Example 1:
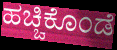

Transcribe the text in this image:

ಹಚ್ಚಿಕೊಂಡೆ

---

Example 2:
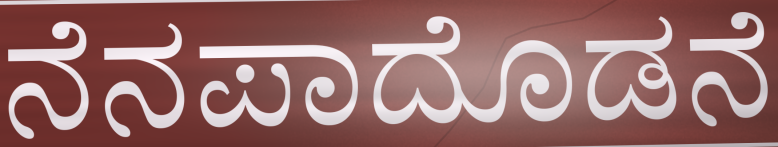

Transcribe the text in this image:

ನೆನಪಾದೊಡನೆ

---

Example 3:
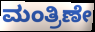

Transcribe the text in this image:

ಮಂತ್ರಿಣೇ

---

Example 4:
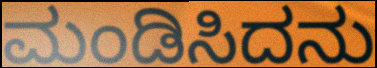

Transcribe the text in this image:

ಮಂಡಿಸಿದನು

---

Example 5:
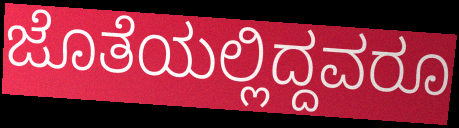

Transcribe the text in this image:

ಜೊತೆಯಲ್ಲಿದ್ದವರೂ